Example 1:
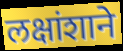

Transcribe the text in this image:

लक्षांशाने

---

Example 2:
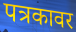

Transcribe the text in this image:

पत्रकावर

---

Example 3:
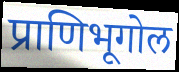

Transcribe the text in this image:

प्राणिभूगोल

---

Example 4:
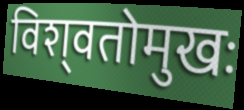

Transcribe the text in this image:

विश्वतोमुखः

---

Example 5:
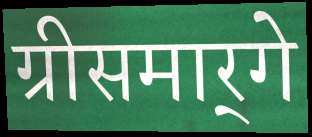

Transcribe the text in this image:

ग्रीसमार्गे